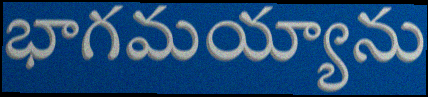
భాగమయ్యాను